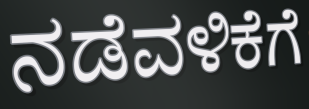
ನಡೆವಳಿಕೆಗೆ